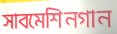
সাবমেশিনগান